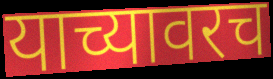
याच्यावरच